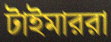
টাইমাররা